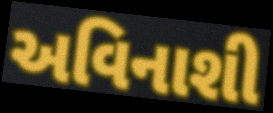
અવિનાશી